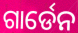
ଗାର୍ଡେନ